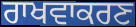
ਰਾਖਵਾਕਰਣ